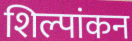
शिल्पांकन